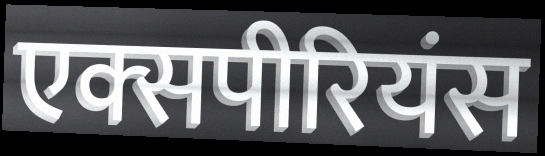
एक्‍सपीरियंस